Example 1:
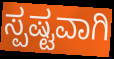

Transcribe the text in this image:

ಸ್ಪಷ್ಟವಾಗಿ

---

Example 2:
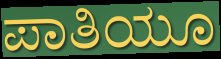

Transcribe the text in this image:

ಪಾತಿಯೂ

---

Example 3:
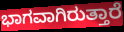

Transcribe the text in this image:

ಭಾಗವಾಗಿರುತ್ತಾರೆ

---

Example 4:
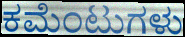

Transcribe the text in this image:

ಕಮೆಂಟುಗಳು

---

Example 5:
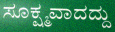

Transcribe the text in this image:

ಸೂಕ್ಷ್ಮವಾದದ್ದು